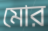
মোর